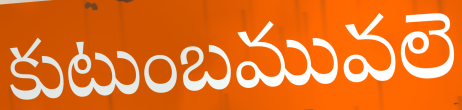
కుటుంబమువలె